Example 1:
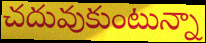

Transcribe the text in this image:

చదువుకుంటున్నా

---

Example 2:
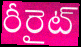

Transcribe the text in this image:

రీరైట్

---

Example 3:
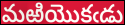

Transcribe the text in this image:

మఱియొకఁడు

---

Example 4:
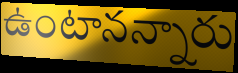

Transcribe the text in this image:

ఉంటానన్నారు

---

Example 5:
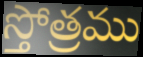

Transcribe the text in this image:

స్తోత్రము